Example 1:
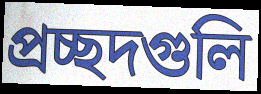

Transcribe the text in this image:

প্রচ্ছদগুলি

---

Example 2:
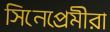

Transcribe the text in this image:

সিনেপ্রেমীরা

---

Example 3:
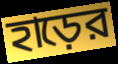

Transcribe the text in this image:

হাড়ের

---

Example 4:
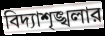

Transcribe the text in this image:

বিদ্যাশৃঙ্খলার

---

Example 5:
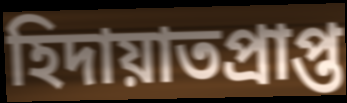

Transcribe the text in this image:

হিদায়াতপ্রাপ্ত